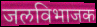
जलविभाजक